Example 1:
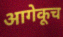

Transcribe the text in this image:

आगेकूच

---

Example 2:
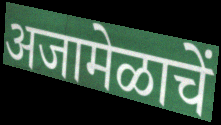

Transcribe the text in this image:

अजामेळाचें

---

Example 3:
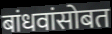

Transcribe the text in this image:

बांधवांसोबत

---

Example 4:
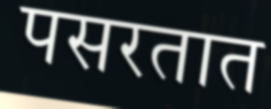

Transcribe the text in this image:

पसरतात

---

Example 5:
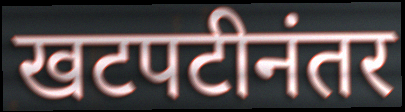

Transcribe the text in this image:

खटपटीनंतर